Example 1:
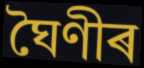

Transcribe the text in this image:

ঘৈণীৰ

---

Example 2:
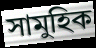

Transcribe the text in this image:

সামুহিক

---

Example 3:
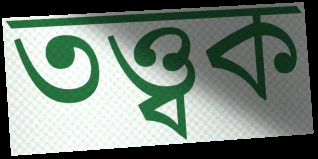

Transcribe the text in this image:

তত্ত্বক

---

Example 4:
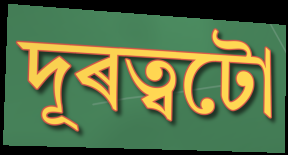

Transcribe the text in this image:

দূৰত্বটো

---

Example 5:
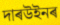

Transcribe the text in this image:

দাৰউইনৰ